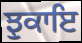
ਝੁਕਾਇ